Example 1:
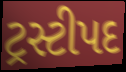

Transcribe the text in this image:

ટ્રસ્ટીપદ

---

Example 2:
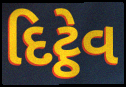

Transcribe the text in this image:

દિટ્ઠેવ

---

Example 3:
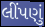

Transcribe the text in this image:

લીંપણું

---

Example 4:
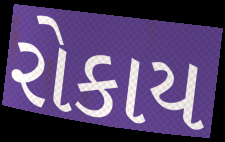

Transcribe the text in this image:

રોકાય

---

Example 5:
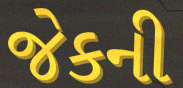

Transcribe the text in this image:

જેકની